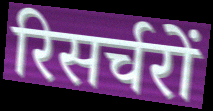
रिसर्चरों